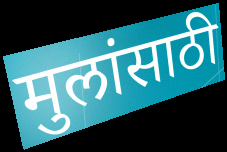
मुलांसाठी